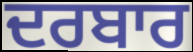
ਦਰਬਾਰ